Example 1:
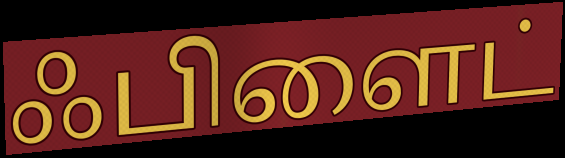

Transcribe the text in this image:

ஃபிளைட்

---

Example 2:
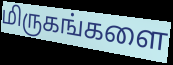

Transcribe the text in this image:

மிருகங்களை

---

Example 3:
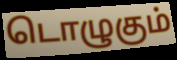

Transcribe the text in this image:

டொழுகும்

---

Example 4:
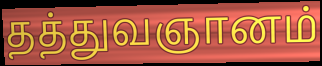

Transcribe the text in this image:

தத்துவஞானம்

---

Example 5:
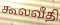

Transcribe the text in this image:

கூலவீதி